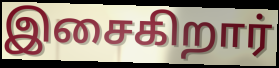
இசைகிறார்